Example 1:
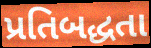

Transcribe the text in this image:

પ્રતિબદ્ધતા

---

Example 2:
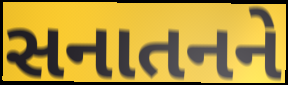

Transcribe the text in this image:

સનાતનને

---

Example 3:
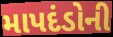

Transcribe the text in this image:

માપદંડોની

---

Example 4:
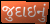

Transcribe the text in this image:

જુદાઇનું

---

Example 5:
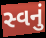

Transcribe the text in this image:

સ્વનું